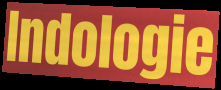
Indologie